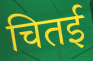
चितई